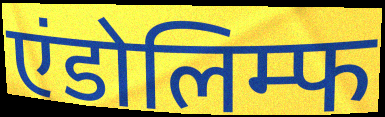
एंडोलिम्फ